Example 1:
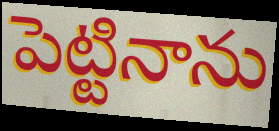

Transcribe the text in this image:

పెట్టినాను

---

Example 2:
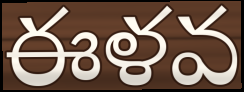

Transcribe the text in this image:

ఈళవ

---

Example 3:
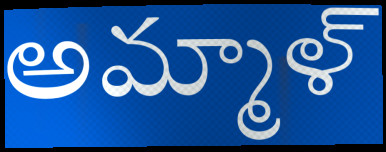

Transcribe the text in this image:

అమ్మాళ్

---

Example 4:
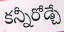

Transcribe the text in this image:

కన్నీరోడ్చే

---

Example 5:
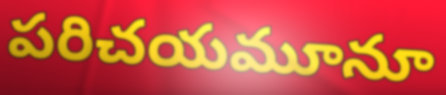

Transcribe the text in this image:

పరిచయమూనూ